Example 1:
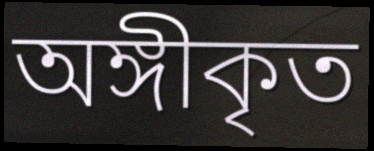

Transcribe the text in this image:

অঙ্গীকৃত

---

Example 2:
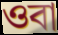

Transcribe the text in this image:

ওবা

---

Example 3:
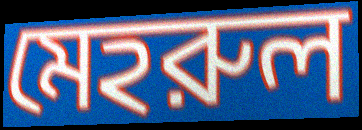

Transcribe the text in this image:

মেহরুল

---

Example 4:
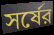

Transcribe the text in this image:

সর্ষের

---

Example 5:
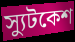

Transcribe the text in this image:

স্যুটকেশ